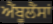
ਐੰਬੂਲੈਂਸਾਂ